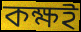
কক্ষই